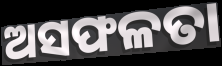
ଅସଫଳତା